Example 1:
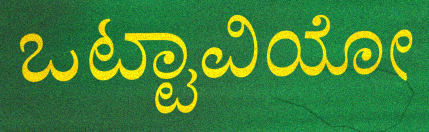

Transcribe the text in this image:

ಒಟ್ಟಾವಿಯೋ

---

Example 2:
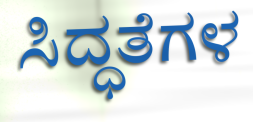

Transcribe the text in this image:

ಸಿದ್ಧತೆಗಳ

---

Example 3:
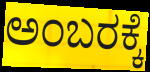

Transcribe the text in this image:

ಅಂಬರಕ್ಕೆ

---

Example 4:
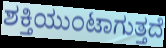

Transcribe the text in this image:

ಶಕ್ತಿಯುಂಟಾಗುತ್ತದೆ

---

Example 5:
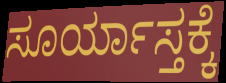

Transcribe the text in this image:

ಸೂರ್ಯಾಸ್ತಕ್ಕೆ